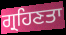
ਗ੍ਰਹਿਣਤਾ